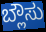
ಬ್ಲೌಸು